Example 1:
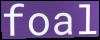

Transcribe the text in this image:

foal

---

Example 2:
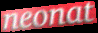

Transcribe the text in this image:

neonat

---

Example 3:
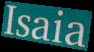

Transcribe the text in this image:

Isaia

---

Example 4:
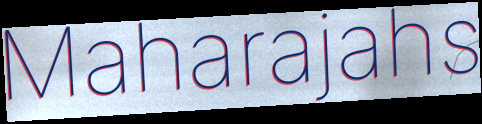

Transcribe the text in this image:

Maharajahs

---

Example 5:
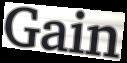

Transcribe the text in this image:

Gain